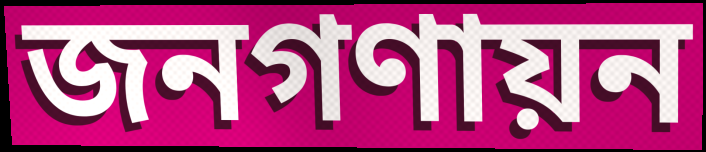
জনগণায়ন